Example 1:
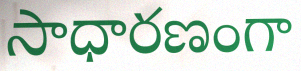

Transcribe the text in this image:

సాధారణంగా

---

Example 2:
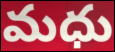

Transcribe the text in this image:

మధు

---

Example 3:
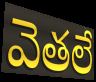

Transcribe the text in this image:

వెతలే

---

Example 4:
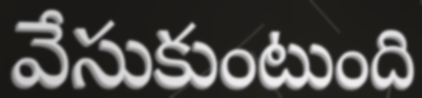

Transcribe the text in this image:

వేసుకుంటుంది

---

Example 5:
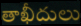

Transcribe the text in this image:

తాఖీదులు